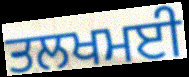
ਤਲਖਮਈ